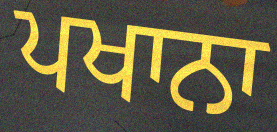
ਪਖਾਨਾ